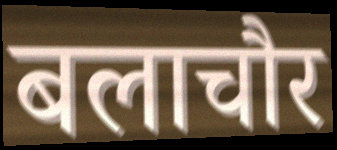
बलाचौर